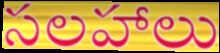
సలహాలు